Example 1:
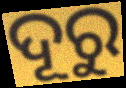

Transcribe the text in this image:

ଦୂରୁ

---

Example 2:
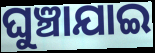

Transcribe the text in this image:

ଘୁଞ୍ଚାଯାଇ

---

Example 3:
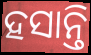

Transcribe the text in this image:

ହସାନ୍ତି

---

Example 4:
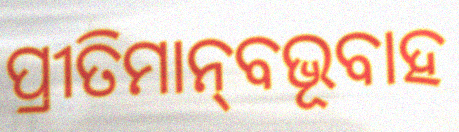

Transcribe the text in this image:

ପ୍ରୀତିମାନ୍‌ବଭୂବାହ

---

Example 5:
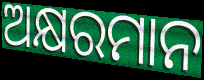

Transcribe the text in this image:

ଅକ୍ଷରମାନ